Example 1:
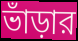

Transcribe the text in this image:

ভাঁড়ার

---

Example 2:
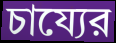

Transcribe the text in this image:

চায্যের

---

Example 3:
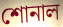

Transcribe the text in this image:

শোনাল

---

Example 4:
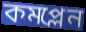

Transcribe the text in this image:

কমপ্লেন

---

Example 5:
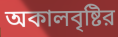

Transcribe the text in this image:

অকালবৃষ্টির